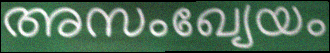
അസംഖ്യേയം